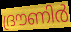
ദ്രൗണിർ